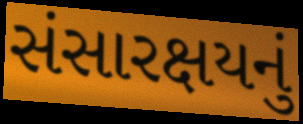
સંસારક્ષયનું